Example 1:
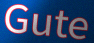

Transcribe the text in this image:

Gute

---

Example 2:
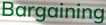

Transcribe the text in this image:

Bargaining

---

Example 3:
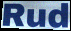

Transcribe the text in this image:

Rud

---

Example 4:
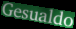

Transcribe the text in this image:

Gesualdo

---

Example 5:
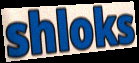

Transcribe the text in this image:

shloks